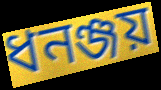
ধনঞ্জয়